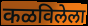
कळविलेला